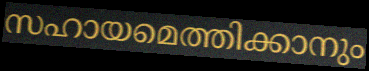
സഹായമെത്തിക്കാനും